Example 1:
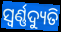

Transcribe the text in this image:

ସ୍ୱର୍ଣ୍ଣଦ୍ୟୁତି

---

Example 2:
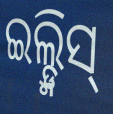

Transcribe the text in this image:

ଇଲ୍ଡ୍ମିସ୍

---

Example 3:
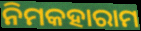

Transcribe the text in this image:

ନିମକହାରାମ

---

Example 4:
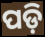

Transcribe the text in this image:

ପଡ଼ି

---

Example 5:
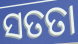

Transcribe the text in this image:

ସତତା